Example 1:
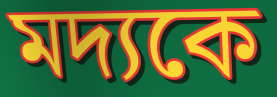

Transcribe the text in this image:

মদ্যকে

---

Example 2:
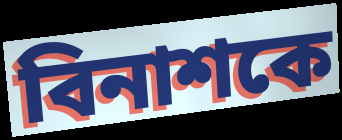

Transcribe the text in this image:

বিনাশকে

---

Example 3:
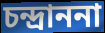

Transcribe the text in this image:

চন্দ্রাননা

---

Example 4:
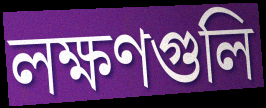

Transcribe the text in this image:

লক্ষণগুলি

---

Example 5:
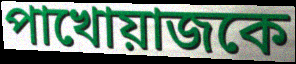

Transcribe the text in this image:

পাখোয়াজকে